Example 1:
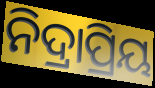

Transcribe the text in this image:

ନିଦ୍ରାପ୍ରିୟ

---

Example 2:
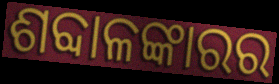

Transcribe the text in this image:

ଶବ୍ଦାଳଙ୍କାରର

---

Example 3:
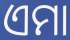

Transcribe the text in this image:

ଏମା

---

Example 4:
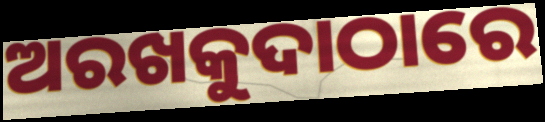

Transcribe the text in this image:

ଅରଖକୁଦାଠାରେ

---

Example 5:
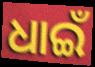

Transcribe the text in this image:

ଧାଇଁ